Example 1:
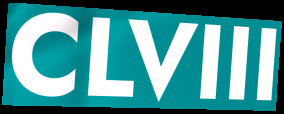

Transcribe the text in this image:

CLVIII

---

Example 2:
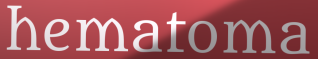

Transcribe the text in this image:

hematoma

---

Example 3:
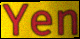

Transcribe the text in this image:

Yen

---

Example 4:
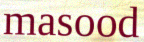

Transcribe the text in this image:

masood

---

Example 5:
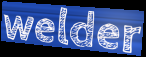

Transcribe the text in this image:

welder